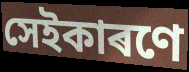
সেইকাৰণে